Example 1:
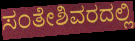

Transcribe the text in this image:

ಸಂತೇಶಿವರದಲ್ಲಿ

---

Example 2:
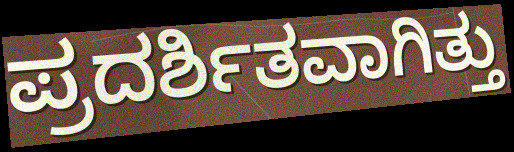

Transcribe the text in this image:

ಪ್ರದರ್ಶಿತವಾಗಿತ್ತು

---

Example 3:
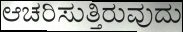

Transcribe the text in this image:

ಆಚರಿಸುತ್ತಿರುವುದು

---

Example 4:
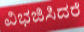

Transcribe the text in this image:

ವಿಭಜಿಸಿದರೆ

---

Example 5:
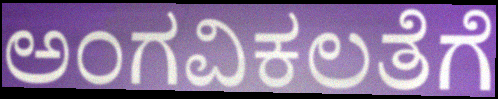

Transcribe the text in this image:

ಅಂಗವಿಕಲತೆಗೆ